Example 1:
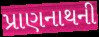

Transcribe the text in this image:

પ્રાણનાથની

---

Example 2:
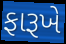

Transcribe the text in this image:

ફારૂખે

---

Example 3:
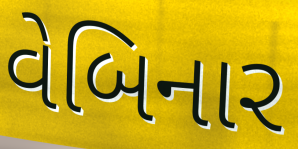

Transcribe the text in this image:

વેબિનાર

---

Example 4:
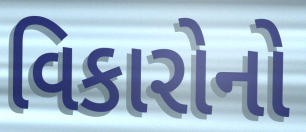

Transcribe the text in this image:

વિકારોનો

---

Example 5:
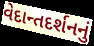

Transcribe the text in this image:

વેદાન્તદર્શનનું